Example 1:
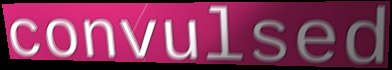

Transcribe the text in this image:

convulsed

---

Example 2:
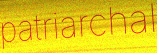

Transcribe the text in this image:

patriarchal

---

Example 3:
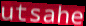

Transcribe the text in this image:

utsahe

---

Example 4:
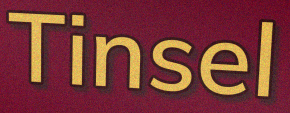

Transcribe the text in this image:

Tinsel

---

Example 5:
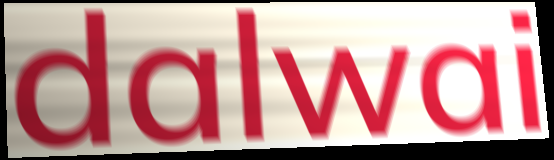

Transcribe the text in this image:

dalwai